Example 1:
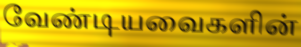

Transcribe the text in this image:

வேண்டியவைகளின்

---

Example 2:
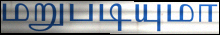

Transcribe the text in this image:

மறுபடியுமா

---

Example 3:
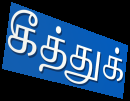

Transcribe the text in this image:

கீத்துக்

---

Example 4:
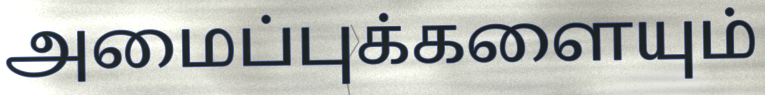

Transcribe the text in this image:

அமைப்புக்களையும்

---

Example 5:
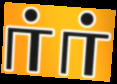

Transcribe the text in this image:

ர்ர்